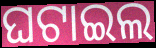
ଘଟାଇଲ